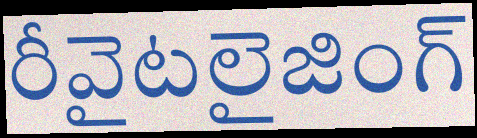
రీవైటలైజింగ్